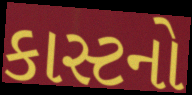
કાસ્ટનો